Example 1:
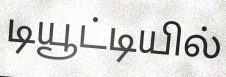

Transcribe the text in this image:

டியூட்டியில்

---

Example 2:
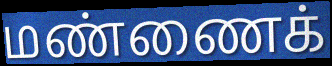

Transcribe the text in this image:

மண்ணைக்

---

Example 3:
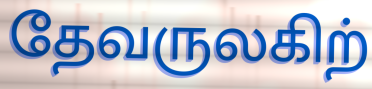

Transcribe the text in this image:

தேவருலகிற்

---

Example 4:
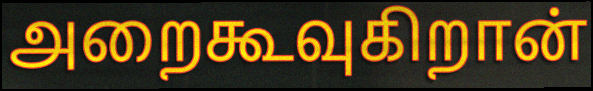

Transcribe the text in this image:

அறைகூவுகிறான்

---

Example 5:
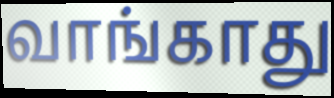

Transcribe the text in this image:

வாங்காது